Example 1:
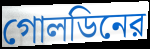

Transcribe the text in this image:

গোলডিনের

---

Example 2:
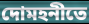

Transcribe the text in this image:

দোমহনীতে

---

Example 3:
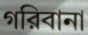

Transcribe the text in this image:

গরিবানা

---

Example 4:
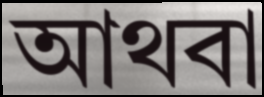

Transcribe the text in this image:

আথবা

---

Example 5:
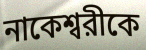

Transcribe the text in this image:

নাকেশ্বরীকে